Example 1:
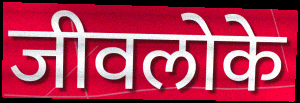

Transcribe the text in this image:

जीवलोके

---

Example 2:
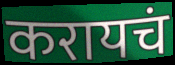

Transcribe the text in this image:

करायचं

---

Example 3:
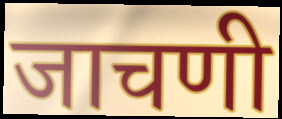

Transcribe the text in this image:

जाचणी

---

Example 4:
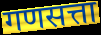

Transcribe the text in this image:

गणसत्ता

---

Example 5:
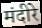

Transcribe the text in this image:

मंदीरे